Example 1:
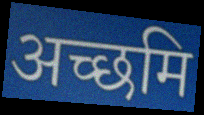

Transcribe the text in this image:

अच्छमि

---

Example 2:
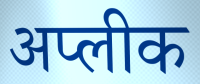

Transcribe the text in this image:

अप्लीक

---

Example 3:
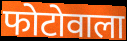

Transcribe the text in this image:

फोटोवाला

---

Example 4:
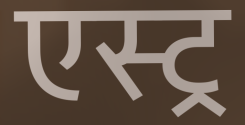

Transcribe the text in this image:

एस्ट्र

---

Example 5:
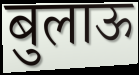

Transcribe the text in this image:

बुलाऊ